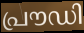
പ്രൗഡി